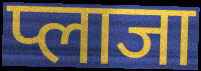
प्‍लाजा